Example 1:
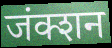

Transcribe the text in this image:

जंक्शन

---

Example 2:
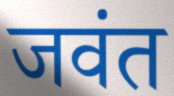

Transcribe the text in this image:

जवंत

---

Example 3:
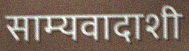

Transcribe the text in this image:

साम्यवादाशी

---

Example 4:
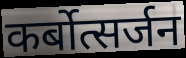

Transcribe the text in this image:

कर्बोत्सर्जन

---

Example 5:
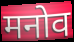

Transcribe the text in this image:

मनोव